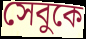
সেবুকে